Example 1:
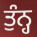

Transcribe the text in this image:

ਤੁੰਨ੍ਹ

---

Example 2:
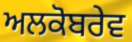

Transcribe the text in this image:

ਅਲਕੋਬਰੇਵ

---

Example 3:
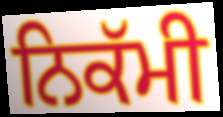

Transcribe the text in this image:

ਨਿਕੱਮੀ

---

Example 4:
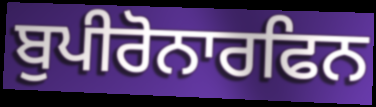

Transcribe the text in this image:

ਬੁਪੀਰੋਨਾਰਫਿਨ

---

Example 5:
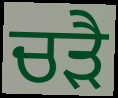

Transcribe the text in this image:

ਚੜੈ